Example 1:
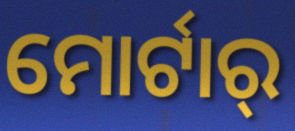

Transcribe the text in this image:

ମୋର୍ଟାର୍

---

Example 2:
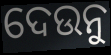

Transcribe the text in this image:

ଦେଉନୁ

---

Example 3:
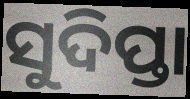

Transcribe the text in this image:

ସୁଦିପ୍ତା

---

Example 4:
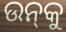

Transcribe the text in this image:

ଉନ୍‌କୁ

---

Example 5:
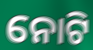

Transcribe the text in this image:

ନୋଟି